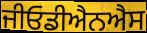
ਜੀਓਡੀਐਨਐਸ